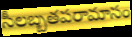
సీలబ్బతపరామాసం